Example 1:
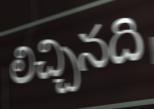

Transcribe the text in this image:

లిచ్చినది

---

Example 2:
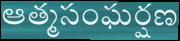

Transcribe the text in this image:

ఆత్మసంఘర్షణ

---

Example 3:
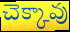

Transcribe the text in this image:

చెక్కావు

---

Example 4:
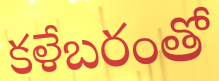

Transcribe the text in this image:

కళేబరంతో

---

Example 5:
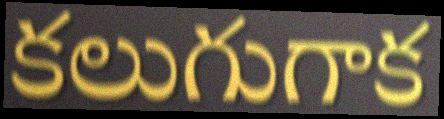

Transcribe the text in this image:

కలుగుగాక